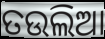
ତଉଲିଆ